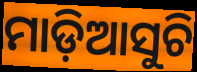
ମାଡ଼ିଆସୁଚି